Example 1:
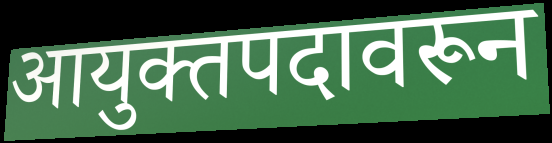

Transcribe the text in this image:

आयुक्तपदावरून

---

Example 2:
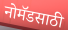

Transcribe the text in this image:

नोमॅडसाठी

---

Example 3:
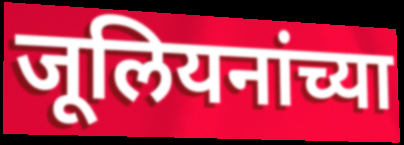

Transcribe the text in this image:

जूलियनांच्या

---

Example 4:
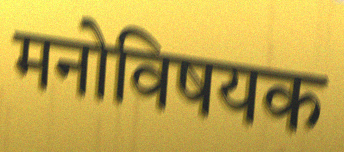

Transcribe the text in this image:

मनोविषयक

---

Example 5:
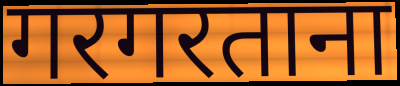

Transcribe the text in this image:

गरगरताना